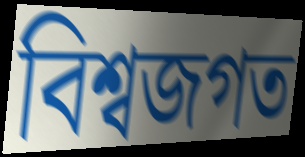
বিশ্বজগত